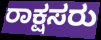
ರಾಕ್ಷಸರು